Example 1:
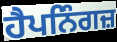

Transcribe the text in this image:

ਹੈਪਨਿੰਗਜ਼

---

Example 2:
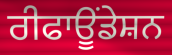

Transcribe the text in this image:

ਰੀਫਾਊਂਡੇਸ਼ਨ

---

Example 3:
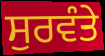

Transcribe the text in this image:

ਸੁਰਵੰਤੇ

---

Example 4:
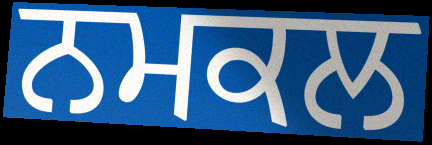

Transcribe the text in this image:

ਨਮਕਲ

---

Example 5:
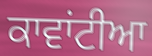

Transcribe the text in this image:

ਕਾਵਾਂਟੀਆ